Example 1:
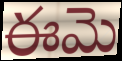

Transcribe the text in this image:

ఈమె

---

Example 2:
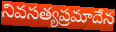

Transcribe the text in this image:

నివసత్యప్రమాదేన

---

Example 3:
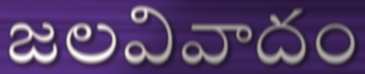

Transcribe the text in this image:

జలవివాదం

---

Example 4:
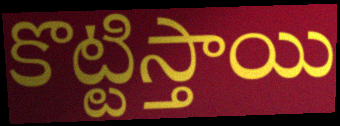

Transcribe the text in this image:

కొట్టిస్తాయి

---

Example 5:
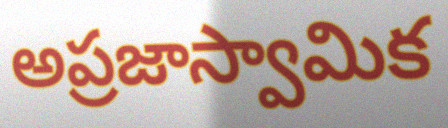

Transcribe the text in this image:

అప్రజాస్వామిక